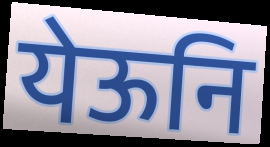
येऊनि